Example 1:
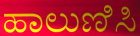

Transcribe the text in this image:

ಹಾಲುಣಿಸಿ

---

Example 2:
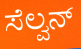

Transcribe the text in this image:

ಸೆಲ್ವನ್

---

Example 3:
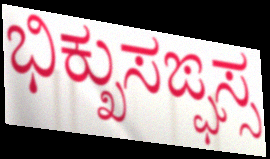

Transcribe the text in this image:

ಭಿಕ್ಖುಸಙ್ಘಸ್ಸ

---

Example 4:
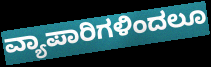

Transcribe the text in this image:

ವ್ಯಾಪಾರಿಗಳಿಂದಲೂ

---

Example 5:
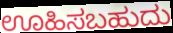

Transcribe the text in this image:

ಊಹಿಸಬಹುದು